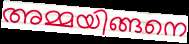
അമ്മയിങ്ങനെ